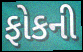
ફોકની